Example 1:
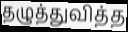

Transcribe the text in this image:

தழுத்துவித்த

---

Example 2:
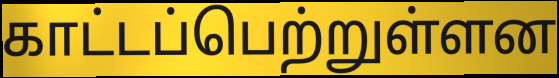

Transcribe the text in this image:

காட்டப்பெற்றுள்ளன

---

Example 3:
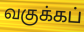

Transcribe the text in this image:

வகுக்கப்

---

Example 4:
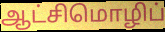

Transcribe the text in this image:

ஆட்சிமொழிப்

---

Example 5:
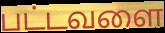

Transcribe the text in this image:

பட்டவளை